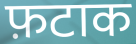
फ़टाक